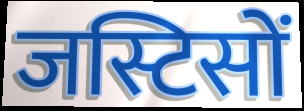
जस्टिसों